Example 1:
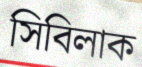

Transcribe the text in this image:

সিবিলাক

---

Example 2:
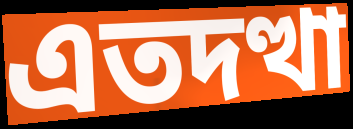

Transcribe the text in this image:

এতদত্থা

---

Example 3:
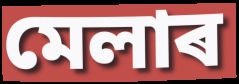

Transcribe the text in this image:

মেলাৰ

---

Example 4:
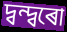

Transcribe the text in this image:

দ্বন্দ্বৰো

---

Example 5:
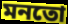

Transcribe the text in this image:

মনতো